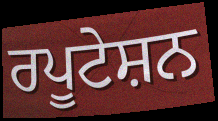
ਰਪੂਟੇਸ਼ਨ